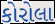
કોરોલા